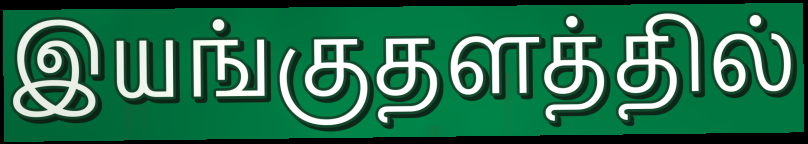
இயங்குதளத்தில்